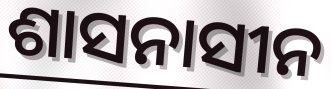
ଶାସନାସୀନ